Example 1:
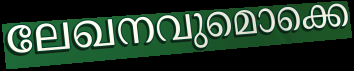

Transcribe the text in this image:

ലേഖനവുമൊക്കെ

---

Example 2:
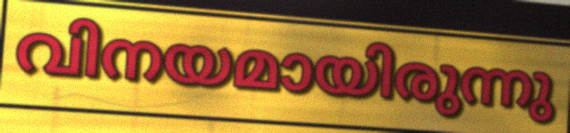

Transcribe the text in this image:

വിനയമായിരുന്നു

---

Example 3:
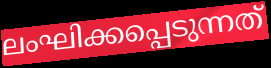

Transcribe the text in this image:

ലംഘിക്കപ്പെടുന്നത്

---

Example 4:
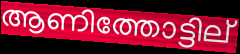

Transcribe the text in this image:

ആണിത്തോട്ടില്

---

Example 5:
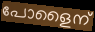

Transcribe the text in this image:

പോളൈന്